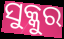
ସୁକ୍କୁର